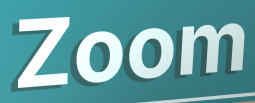
Zoom